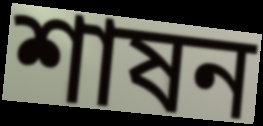
শাষন